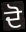
ਦੋ